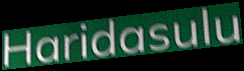
Haridasulu